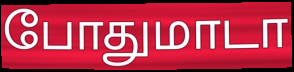
போதுமாடா